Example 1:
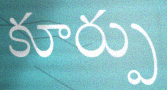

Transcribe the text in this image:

కూర్పు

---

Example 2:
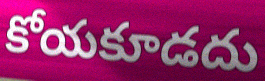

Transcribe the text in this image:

కోయకూడదు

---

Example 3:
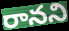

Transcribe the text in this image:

రానని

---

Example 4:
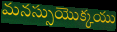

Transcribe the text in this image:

మనస్సుయొక్కయు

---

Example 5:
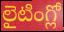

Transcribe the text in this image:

లైటింగ్లో